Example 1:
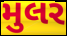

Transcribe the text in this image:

મુલર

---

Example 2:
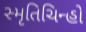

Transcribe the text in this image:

સ્મૃતિચિન્હો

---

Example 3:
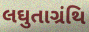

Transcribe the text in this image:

લઘુતાગ્રંથિ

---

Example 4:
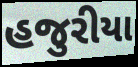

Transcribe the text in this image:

હજુરીયા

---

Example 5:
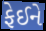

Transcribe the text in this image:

ફેઈને